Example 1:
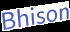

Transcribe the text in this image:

Bhison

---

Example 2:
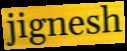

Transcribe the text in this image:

jignesh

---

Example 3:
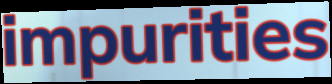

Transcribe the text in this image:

impurities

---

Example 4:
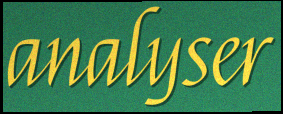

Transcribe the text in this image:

analyser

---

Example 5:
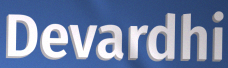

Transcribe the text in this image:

Devardhi